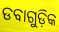
ଡବାଗୁଡ଼ିକ